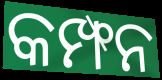
କମ୍ଫନ